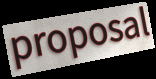
proposal